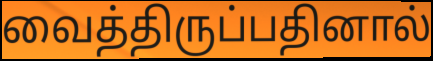
வைத்திருப்பதினால்